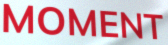
MOMENT